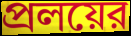
প্রলয়ের